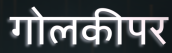
गोलकीपर